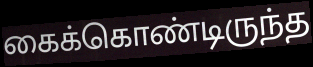
கைக்கொண்டிருந்த